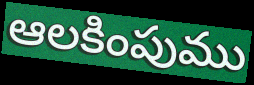
ఆలకింపుము